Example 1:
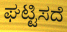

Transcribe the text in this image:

ಘಟ್ಟಿಸದೆ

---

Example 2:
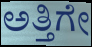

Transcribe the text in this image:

ಅತ್ತಿಗೇ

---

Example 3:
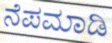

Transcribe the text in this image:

ನೆಪಮಾಡಿ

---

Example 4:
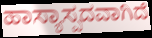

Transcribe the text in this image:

ಹಾಸ್ಯಾಸ್ಪದವಾಗಿದೆ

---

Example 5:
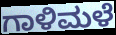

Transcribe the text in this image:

ಗಾಳಿಮಳೆ